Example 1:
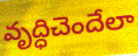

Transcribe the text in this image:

వృద్ధిచెందేలా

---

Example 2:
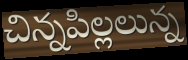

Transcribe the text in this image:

చిన్నపిల్లలున్న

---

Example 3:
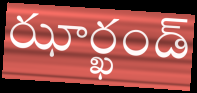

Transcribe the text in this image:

ఝార్ఖండ్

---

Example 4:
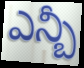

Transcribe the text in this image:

ఎన్బీ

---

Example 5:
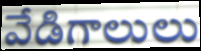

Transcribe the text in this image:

వేడిగాలులు